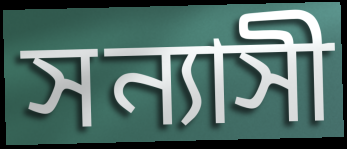
সন্যাসী